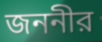
জননীর